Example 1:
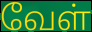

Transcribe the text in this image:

வேள்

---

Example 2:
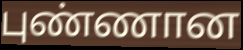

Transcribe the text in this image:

புண்ணான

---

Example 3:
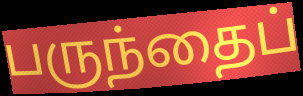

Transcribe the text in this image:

பருந்தைப்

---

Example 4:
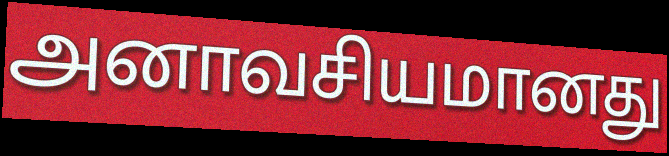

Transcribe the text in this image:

அனாவசியமானது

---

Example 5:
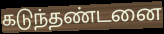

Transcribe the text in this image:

கடுந்தண்டனை